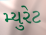
મ્યુરેટ